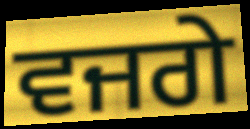
ਵਜਗੇ